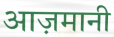
आज़मानी